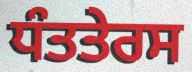
ਧੰਤਤੇਰਸ